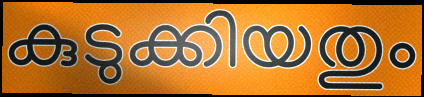
കുടുക്കിയതും